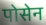
पोसेन